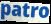
patro